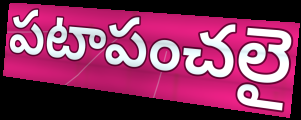
పటాపంచలై